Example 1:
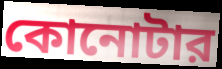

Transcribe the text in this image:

কোনোটার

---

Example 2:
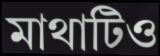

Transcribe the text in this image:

মাথাটিও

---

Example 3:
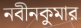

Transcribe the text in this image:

নবীনকুমার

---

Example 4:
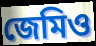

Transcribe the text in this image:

জেমিও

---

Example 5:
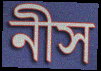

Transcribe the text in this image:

নীস